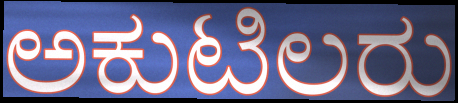
ಅಕುಟಿಲರು